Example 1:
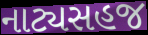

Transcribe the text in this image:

નાટ્યસહજ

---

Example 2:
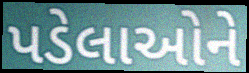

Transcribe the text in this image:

પડેલાઓને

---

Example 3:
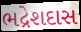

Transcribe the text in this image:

ભદ્રેશદાસ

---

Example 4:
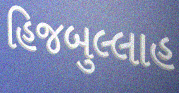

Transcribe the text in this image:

હિજબુલ્લાહ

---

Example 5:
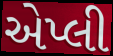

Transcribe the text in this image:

એપ્લી